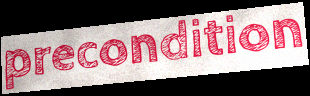
precondition